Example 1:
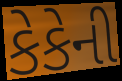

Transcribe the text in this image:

કેકેની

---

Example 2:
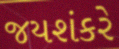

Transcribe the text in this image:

જયશંકરે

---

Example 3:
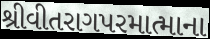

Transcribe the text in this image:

શ્રીવીતરાગપરમાત્માના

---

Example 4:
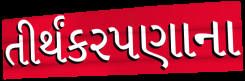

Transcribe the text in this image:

તીર્થંકરપણાના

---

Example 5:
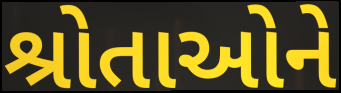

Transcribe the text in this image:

શ્રોતાઓને